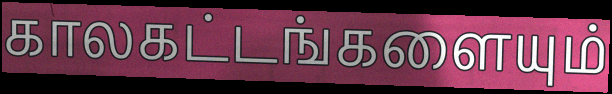
காலகட்டங்களையும்